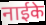
नाईके